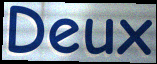
Deux